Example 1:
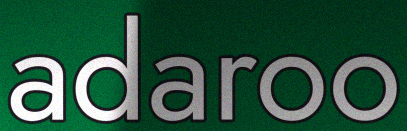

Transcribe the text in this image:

adaroo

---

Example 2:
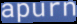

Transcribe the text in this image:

apurn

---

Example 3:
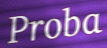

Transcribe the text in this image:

Proba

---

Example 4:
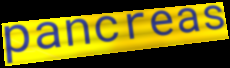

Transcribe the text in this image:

pancreas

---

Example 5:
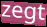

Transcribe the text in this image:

zegt